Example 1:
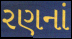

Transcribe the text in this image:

રણનાં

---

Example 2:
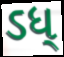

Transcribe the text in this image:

ઽધ્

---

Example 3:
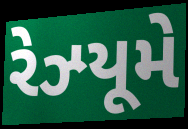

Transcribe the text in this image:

રેઝ્યૂમે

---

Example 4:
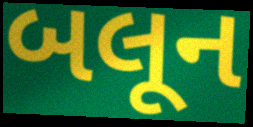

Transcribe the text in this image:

બલૂન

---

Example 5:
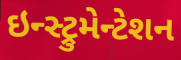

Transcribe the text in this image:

ઇન્સ્ટ્રુમેન્ટેશન